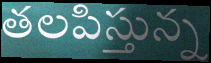
తలపిస్తున్న